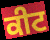
ਕੀਟ